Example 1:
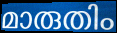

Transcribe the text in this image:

മാരുതിം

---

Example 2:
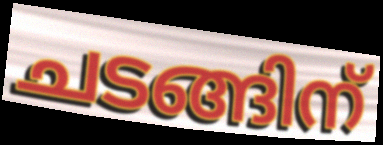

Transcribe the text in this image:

ചടങ്ങിന്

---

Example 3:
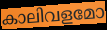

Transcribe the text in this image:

കാലിവളമോ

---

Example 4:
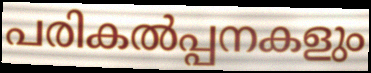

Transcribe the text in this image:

പരികൽപ്പനകളും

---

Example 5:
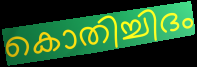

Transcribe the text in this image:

കൊതിച്ചിദം